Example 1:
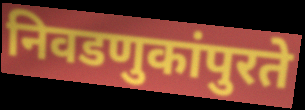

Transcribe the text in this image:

निवडणुकांपुरते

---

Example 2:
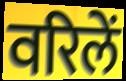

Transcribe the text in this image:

वरिलें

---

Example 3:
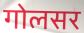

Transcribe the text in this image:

गोलसर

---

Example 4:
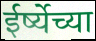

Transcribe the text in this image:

ईर्ष्येच्या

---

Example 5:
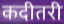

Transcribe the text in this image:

कदीतरी